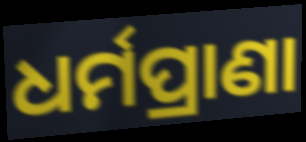
ଧର୍ମପ୍ରାଣା